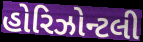
હોરિઝોન્ટલી